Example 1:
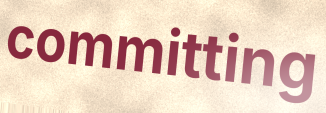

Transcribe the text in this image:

committing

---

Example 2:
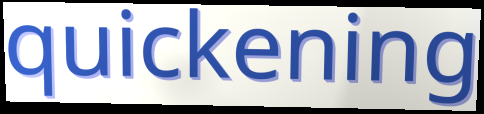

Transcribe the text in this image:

quickening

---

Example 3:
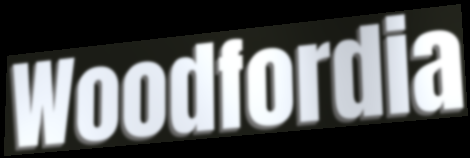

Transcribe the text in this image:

Woodfordia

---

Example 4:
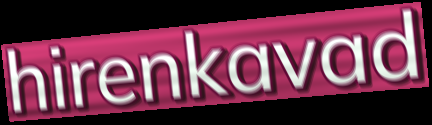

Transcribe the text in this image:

hirenkavad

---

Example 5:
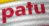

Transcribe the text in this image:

patu